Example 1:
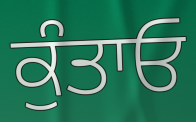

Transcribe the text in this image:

ਕੁੰਤਾਓ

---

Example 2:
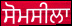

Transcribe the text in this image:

ਸੋਮਸੀਲਾ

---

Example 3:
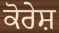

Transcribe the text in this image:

ਕੋਰੇਸ਼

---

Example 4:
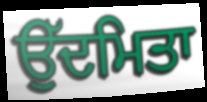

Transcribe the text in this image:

ਉੱਦਮਿਤਾ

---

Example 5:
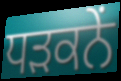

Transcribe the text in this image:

ਧੜਕਨੇਂ